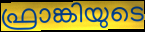
ഫ്രാങ്കിയുടെ